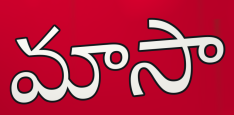
మాసా